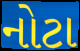
નોટા